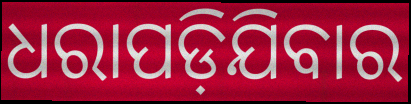
ଧରାପଡ଼ିଯିବାର